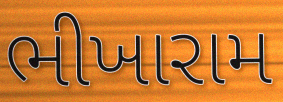
ભીખારામ